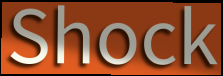
Shock